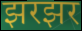
झरझर